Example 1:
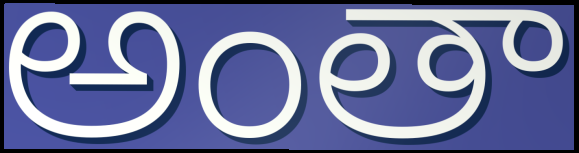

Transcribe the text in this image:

అంతా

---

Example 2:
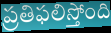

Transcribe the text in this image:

ప్రతిఫలిస్తోంది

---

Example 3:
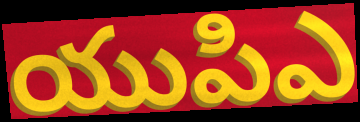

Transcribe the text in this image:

యుపిఎ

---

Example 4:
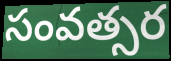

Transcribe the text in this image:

సంవత్సర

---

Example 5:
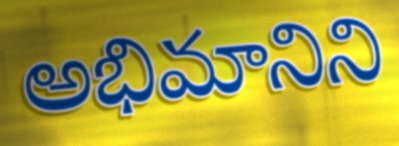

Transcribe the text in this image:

అభిమానిని